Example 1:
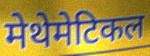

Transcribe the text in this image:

मेथेमेटिकल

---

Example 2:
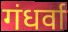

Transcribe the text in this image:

गंधर्वा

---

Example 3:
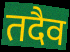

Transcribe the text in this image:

तदैव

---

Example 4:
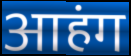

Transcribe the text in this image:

आहंग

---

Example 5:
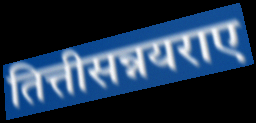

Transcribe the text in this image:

तित्तीसन्नयराए